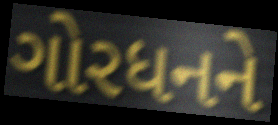
ગોરધનને